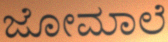
ಜೋಮಾಲೆ